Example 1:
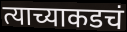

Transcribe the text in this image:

त्याच्याकडचं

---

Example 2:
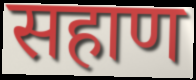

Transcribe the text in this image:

सहाण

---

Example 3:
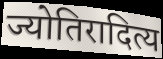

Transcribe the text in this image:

ज्योतिरादित्य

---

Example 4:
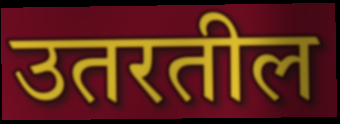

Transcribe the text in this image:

उतरतील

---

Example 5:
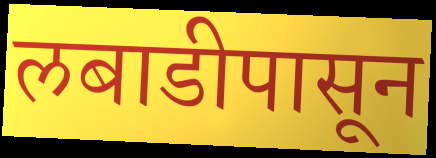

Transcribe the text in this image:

लबाडीपासून